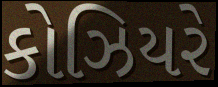
કોઝિયરે